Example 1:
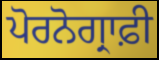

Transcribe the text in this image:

ਪੋਰਨੋਗ੍ਰਾਫ਼ੀ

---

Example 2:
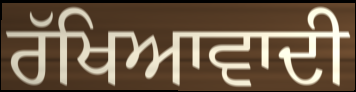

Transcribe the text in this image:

ਰੱਖਿਆਵਾਦੀ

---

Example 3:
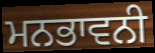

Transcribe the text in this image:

ਮਨਭਾਵਨੀ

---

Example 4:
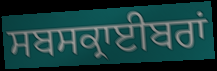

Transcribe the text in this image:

ਸਬਸਕ੍ਰਾਈਬਰਾਂ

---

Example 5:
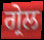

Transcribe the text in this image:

ਗ੍ਰੇਲ